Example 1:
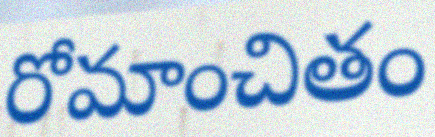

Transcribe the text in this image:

రోమాంచితం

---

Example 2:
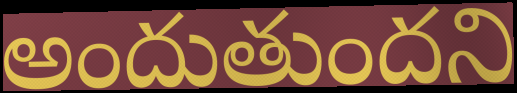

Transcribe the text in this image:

అందుతుందని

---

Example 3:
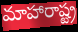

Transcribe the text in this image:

మాహారాష్ట్ర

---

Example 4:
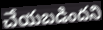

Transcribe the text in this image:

చేయబడిందని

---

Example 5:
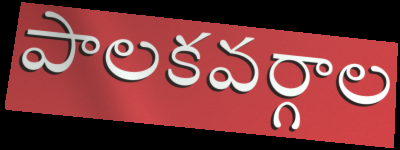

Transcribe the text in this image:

పాలకవర్గాల